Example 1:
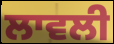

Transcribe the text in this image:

ਲਾਵਲੀ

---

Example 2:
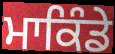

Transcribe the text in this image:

ਮਾਕਿੰਡੇ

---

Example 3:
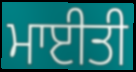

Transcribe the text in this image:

ਮਾਈਤੀ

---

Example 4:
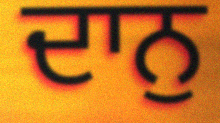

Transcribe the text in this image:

ਦਾਨੁ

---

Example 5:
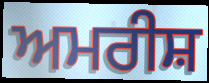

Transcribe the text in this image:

ਅਮਰੀਸ਼